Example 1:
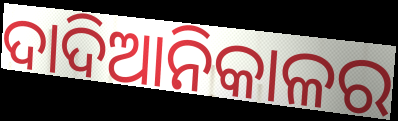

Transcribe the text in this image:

ଦାଦିଆନିକାଳର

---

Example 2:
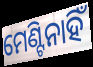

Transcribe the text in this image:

ମେଣ୍ଟିନାହିଁ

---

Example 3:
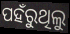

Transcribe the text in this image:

ପହଁରୁଥିଲୁ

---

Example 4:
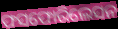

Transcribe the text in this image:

ଫସଫୋରିଲେସନ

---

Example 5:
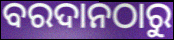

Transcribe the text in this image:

ବରଦାନଠାରୁ